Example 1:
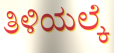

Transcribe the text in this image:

ತಿಳಿಯಲ್ಕೆ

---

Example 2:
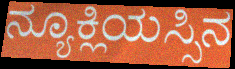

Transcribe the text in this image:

ನ್ಯೂಕ್ಲಿಯಸ್ಸಿನ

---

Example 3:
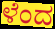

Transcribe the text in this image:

ಳೆಂದ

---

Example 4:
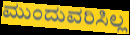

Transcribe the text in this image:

ಮುಂದುವರಿಸಿಲ್ಲ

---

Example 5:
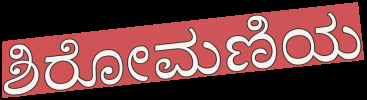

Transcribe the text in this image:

ಶಿರೋಮಣಿಯ